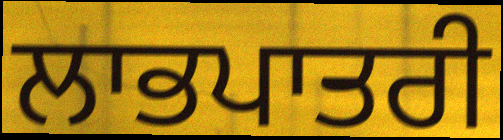
ਲਾਭਪਾਤਰੀ